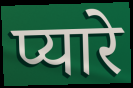
प्यारे